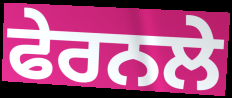
ਫੇਰਨਲੇ